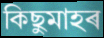
কিছুমাহৰ